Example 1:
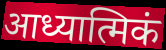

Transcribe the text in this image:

आध्यात्मिकं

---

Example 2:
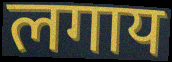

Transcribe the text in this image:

लगाय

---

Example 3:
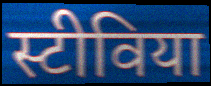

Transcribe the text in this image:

स्टीविया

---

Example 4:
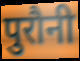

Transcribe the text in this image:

पुरौनी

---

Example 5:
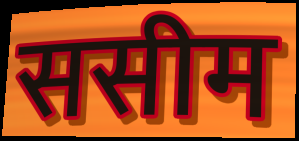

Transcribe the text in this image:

ससीम